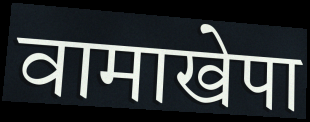
वामाखेपा